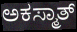
ಅಕಸ್ಮಾತ್